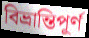
বিভ্রান্তিপূর্ণ